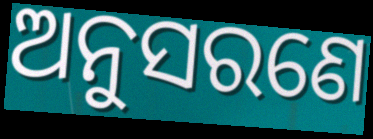
ଅନୁସରଣେ